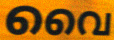
വൈ